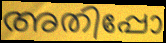
അതിപ്പോ